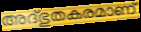
അദ്ഭുതകരമാണ്